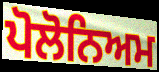
ਪੋਲੋਨਿਅਮ